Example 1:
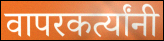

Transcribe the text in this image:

वापरकर्त्यांनी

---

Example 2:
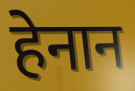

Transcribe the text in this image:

हेनान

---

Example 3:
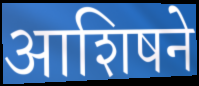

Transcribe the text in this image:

आशिषने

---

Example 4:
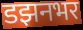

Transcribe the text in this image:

डझनभर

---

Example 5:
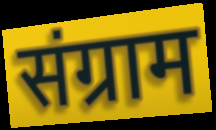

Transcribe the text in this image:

संग्राम